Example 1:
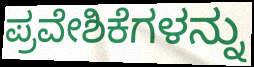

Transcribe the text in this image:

ಪ್ರವೇಶಿಕೆಗಳನ್ನು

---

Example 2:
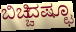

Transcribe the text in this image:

ಬಿಚ್ಚಿದಷ್ಟೂ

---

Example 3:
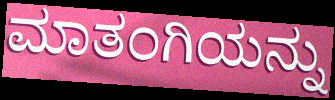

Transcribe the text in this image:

ಮಾತಂಗಿಯನ್ನು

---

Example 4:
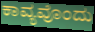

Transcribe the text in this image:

ಕಾವ್ಯವೊಂದು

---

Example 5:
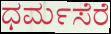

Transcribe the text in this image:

ಧರ್ಮಸೆರೆ